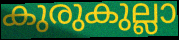
കുരുകുല്ലാ